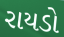
રાયડો